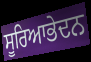
ਸੂਰਿਆਭੇਦਨ